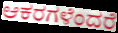
ಆಕರಗಳೆಂದರೆ